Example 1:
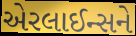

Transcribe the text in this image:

એરલાઈન્સને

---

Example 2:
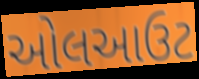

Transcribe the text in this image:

ઓલઆઉટ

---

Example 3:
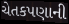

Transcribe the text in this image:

ચેતકપણાની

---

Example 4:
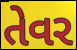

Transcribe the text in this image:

તેવર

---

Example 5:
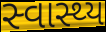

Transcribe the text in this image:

સ્વાસ્થ્ય